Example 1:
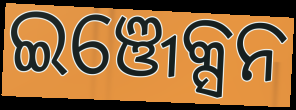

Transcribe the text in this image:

ଇଞ୍ଜେକ୍ସନ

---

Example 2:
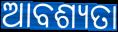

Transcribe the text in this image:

ଆବଶ୍ୟତା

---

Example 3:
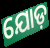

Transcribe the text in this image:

ଯୋଡ଼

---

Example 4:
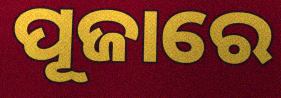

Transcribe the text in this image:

ପୂଜାରେ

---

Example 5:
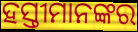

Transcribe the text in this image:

ହସ୍ତୀମାନଙ୍କର